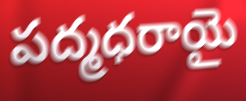
పద్మధరాయై